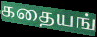
கதையங்